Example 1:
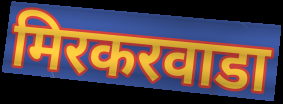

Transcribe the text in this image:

मिरकरवाडा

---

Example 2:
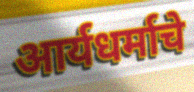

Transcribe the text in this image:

आर्यधर्माचे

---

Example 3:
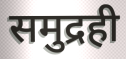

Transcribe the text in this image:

समुद्रही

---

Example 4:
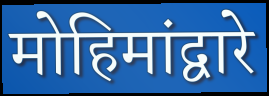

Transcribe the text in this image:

मोहिमांद्वारे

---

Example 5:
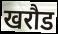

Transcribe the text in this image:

खरौड